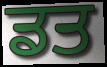
ਡਤ